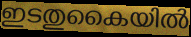
ഇടതുകൈയിൽ